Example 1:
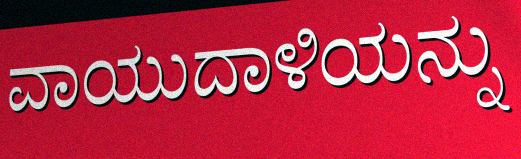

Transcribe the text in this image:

ವಾಯುದಾಳಿಯನ್ನು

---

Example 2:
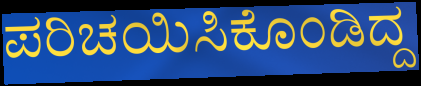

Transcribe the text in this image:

ಪರಿಚಯಿಸಿಕೊಂಡಿದ್ದ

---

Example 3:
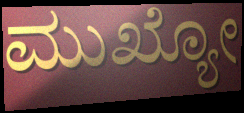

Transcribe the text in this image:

ಮುಖ್ಯೋ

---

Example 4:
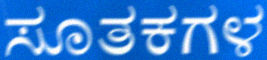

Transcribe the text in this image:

ಸೂತಕಗಳ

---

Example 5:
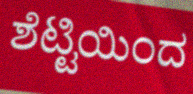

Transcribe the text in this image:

ಶೆಟ್ಟಿಯಿಂದ